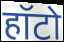
हॉटो